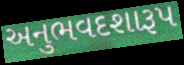
અનુભવદશારૂપ